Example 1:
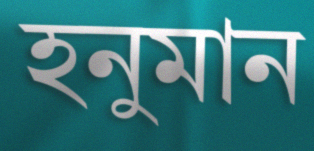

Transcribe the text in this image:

হনুমান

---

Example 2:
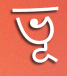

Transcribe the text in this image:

ভূ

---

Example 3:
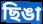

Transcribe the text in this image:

ছিঙা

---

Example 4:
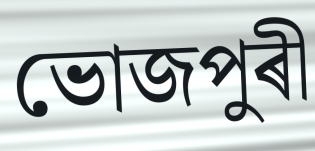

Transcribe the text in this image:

ভোজপুৰী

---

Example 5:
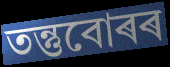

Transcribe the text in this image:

তন্তুবোৰৰ